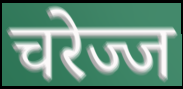
चरेज्ज